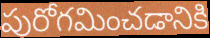
పురోగమించడానికి